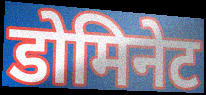
डोमिनेट